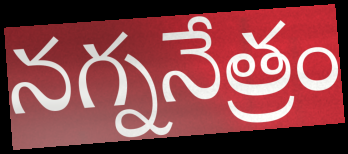
నగ్ననేత్రం